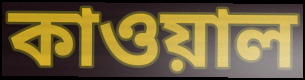
কাওয়াল